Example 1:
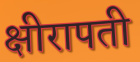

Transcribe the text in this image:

क्षीरापती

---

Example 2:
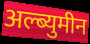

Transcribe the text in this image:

अल्ब्युमीन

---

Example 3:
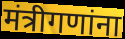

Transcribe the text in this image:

मंत्रीगणांना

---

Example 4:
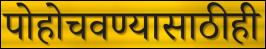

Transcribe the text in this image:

पोहोचवण्यासाठीही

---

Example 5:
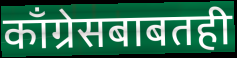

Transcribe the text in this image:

काँग्रेसबाबतही